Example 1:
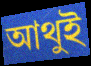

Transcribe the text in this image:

আথুই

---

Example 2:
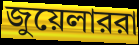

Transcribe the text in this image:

জুয়েলাররা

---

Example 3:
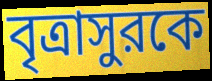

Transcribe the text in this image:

বৃত্রাসুরকে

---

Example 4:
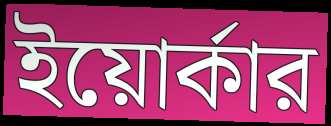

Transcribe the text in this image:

ইয়োর্কার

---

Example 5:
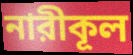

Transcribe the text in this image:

নারীকূল